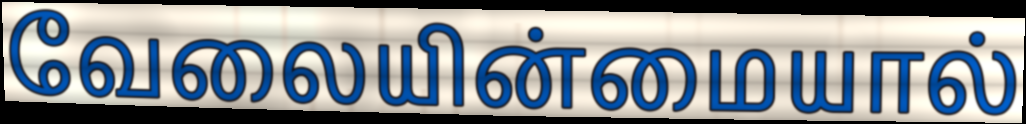
வேலையின்மையால்